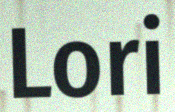
Lori